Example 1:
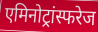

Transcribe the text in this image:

एमिनोट्रांस्फरेज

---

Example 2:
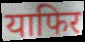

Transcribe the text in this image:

याफिर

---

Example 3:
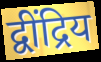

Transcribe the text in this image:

द्वींद्रिय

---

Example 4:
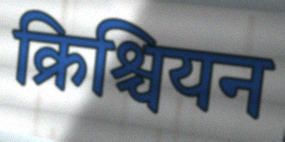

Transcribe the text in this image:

क्रिश्चियन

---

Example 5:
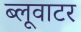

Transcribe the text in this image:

ब्लूवाटर